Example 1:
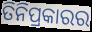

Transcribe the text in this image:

ତିନିପ୍ରକାରର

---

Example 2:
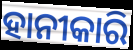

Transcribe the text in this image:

ହାନୀକାରି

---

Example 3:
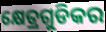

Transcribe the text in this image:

କ୍ଷେତ୍ରଗୁଡିକର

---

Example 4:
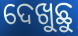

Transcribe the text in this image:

ଦେଖୁଛୁ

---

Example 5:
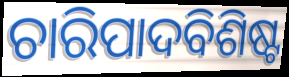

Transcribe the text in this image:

ଚାରିପାଦବିଶିଷ୍ଟ